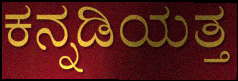
ಕನ್ನಡಿಯತ್ತ